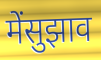
मेंसुझाव